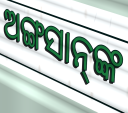
ଅଙ୍ଗସାନ୍‌ଙ୍କ